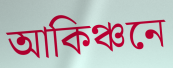
আকিঞ্চনে